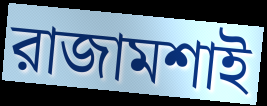
রাজামশাই